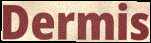
Dermis